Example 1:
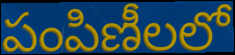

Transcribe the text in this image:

పంపిణీలలో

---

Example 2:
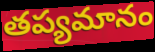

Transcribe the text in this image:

తప్యమానం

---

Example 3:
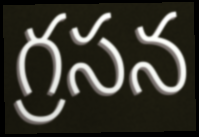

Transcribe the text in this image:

గ్రసన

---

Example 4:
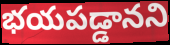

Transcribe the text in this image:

భయపడ్డానని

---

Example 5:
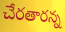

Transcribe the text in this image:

చేరతారన్న